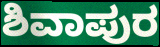
ಶಿವಾಪುರ